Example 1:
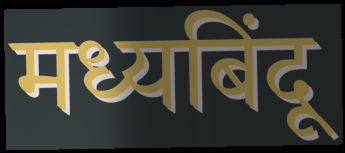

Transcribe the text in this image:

मध्यबिंदू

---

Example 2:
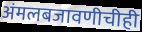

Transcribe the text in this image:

अंमलबजावणीचीही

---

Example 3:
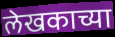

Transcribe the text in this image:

लेखकाच्या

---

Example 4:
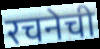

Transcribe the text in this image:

रचनेची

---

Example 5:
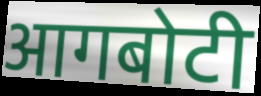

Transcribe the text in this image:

आगबोटी